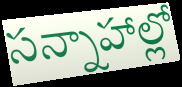
సన్నాహాల్లో